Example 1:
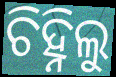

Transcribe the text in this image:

ଚିହ୍ନିଲୁ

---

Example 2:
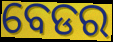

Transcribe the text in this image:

ବେଡର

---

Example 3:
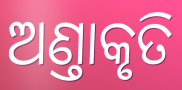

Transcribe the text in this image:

ଅଣ୍ତାକୃତି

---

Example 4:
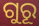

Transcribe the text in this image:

ଗୁରୂ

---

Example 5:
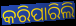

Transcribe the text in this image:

କରିପାରିଲି